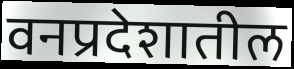
वनप्रदेशातील